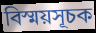
বিস্ময়সূচক